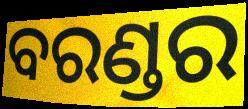
ବରଣ୍ଡର